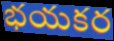
భయకర